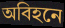
অবিহনে